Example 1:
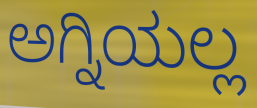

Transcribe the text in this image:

ಅಗ್ನಿಯಲ್ಲ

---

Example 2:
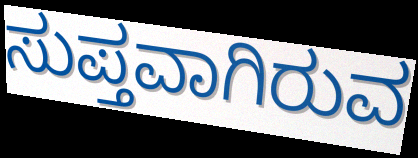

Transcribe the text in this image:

ಸುಪ್ತವಾಗಿರುವ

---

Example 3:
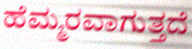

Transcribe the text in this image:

ಹೆಮ್ಮರವಾಗುತ್ತದೆ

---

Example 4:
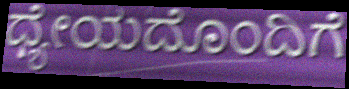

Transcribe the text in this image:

ಧ್ಯೇಯದೊಂದಿಗೆ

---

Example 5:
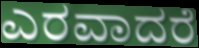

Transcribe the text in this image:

ಎರವಾದರೆ